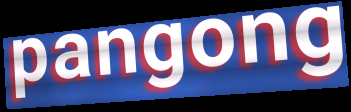
pangong